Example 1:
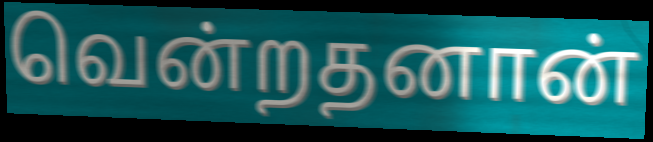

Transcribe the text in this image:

வென்றதனான்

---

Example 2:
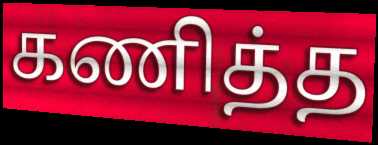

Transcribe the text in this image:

கணித்த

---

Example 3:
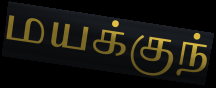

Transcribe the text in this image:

மயக்குந்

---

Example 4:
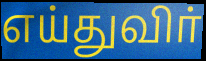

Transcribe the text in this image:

எய்துவிர்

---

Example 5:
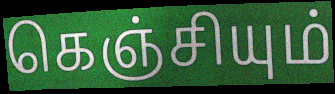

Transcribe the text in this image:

கெஞ்சியும்